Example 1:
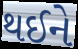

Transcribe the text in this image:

થઈને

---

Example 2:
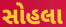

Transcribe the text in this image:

સોહલા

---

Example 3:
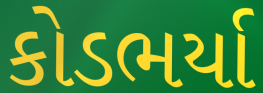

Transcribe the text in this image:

કોડભર્યા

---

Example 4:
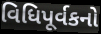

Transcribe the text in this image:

વિધિપૂર્વકનો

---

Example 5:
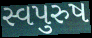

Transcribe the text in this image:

સ્વપુરુષ